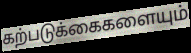
கற்படுக்கைகளையும்